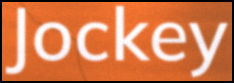
Jockey